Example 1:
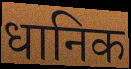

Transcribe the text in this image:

धानिक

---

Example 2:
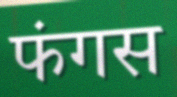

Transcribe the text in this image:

फंगस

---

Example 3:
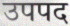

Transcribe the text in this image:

उपपद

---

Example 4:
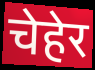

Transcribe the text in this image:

चेहेर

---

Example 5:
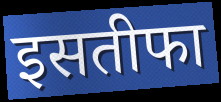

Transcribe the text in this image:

इसतीफा